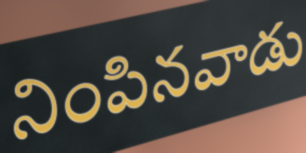
నింపినవాడు